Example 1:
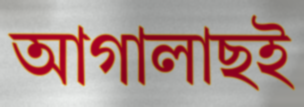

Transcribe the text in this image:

আগালাছই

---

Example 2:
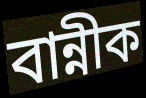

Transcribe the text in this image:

বান্নীক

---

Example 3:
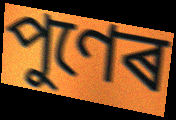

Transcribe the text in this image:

পুণেৰ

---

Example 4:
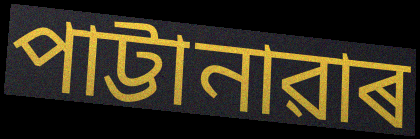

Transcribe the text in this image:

পাট্টানাৱাৰ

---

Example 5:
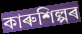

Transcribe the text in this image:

কাৰুশিল্পৰ